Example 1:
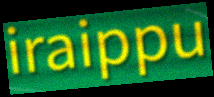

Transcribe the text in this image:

iraippu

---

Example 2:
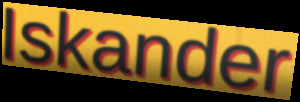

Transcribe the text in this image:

Iskander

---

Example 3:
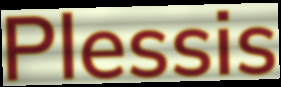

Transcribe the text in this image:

Plessis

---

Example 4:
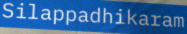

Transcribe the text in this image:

Silappadhikaram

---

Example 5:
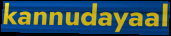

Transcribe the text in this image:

kannudayaal